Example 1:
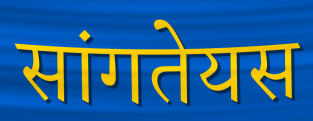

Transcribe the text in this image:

सांगतेयस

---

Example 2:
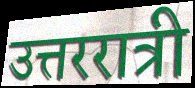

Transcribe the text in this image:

उत्तररात्री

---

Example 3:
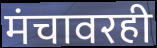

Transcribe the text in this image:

मंचावरही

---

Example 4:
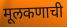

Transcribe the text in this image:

मूलकणाची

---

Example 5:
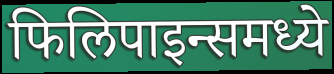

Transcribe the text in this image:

फिलिपाइन्समध्ये